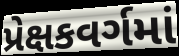
પ્રેક્ષકવર્ગમાં